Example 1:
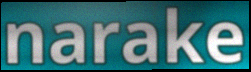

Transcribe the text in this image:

narake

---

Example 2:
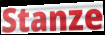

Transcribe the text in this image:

Stanze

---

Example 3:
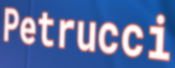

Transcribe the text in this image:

Petrucci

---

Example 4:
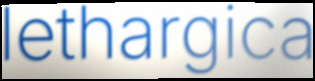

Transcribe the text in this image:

lethargica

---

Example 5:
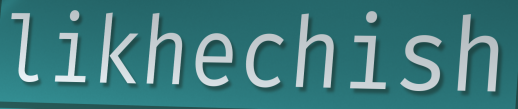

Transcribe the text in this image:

likhechish